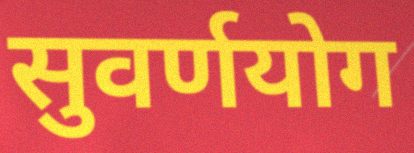
सुवर्णयोग